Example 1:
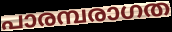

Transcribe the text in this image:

പാരമ്പരാഗത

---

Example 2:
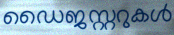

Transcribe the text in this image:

ഡൈജസ്റ്ററുകൾ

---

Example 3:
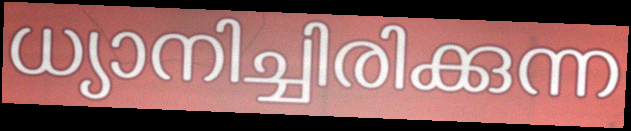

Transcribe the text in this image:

ധ്യാനിച്ചിരിക്കുന്ന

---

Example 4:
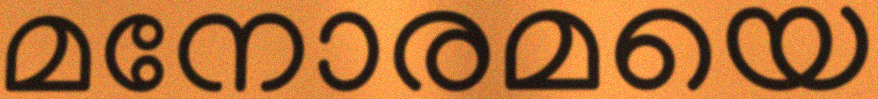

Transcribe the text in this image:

മനോരമയെ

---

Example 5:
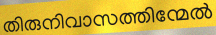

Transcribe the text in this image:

തിരുനിവാസത്തിന്മേൽ